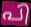
പി